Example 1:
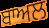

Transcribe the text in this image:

ਬਾਅਲ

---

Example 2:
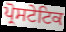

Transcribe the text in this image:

ਪ੍ਰੋਸਟੇਟਿਕ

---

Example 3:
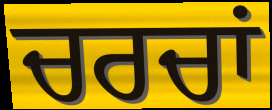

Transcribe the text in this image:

ਚਰਚਾਂ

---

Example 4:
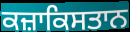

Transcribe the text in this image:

ਕਜ਼ਾਕਿਸਤਾਨ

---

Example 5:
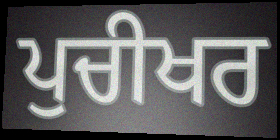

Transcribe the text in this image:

ਪੁਚੀਖਰ